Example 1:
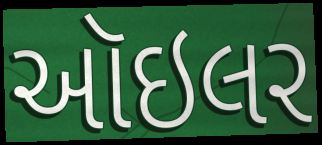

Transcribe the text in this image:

ઑઇલર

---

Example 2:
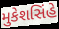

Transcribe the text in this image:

મુકેશસિંહે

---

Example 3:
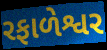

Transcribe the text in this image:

રફાળેશ્વર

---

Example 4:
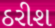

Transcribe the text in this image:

ઠરીશ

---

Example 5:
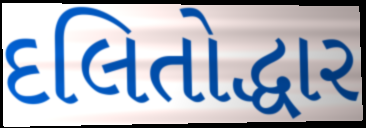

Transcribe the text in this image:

દલિતોદ્ધાર